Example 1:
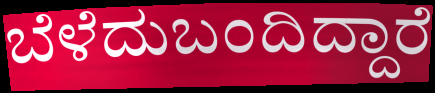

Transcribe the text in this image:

ಬೆಳೆದುಬಂದಿದ್ದಾರೆ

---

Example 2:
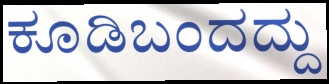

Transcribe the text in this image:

ಕೂಡಿಬಂದದ್ದು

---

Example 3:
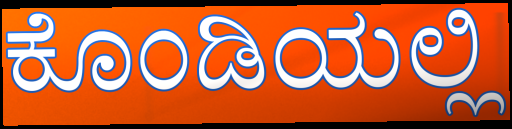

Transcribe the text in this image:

ಕೊಂಡಿಯಲ್ಲಿ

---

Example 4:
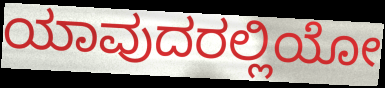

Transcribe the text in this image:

ಯಾವುದರಲ್ಲಿಯೋ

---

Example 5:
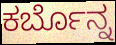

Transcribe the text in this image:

ಕರ್ಬೊನ್ನ